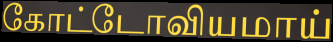
கோட்டோவியமாய்